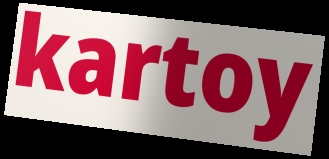
kartoy